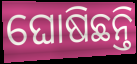
ଘୋଷିଛନ୍ତି